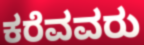
ಕರೆವವರು